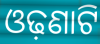
ଓଢ଼ଣାଟି